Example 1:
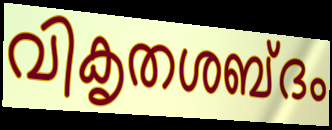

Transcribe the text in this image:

വികൃതശബ്ദം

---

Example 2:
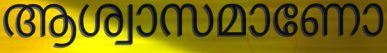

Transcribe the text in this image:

ആശ്വാസമാണോ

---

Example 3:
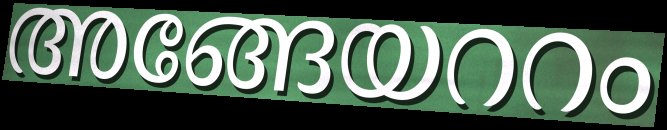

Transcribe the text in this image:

അങ്ങേയററം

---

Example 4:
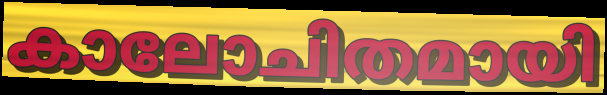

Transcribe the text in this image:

കാലോചിതമായി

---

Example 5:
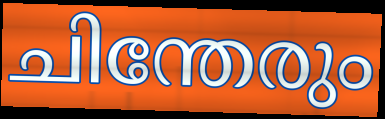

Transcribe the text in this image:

ചിന്തേരും